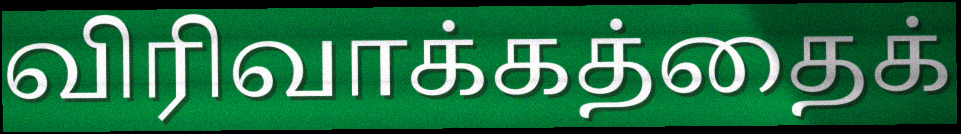
விரிவாக்கத்தைக்